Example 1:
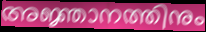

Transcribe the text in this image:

അജ്ഞാനത്തിനും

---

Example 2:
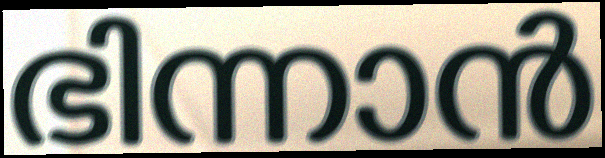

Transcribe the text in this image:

ഭിന്നാൻ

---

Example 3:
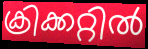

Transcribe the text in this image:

ക്രിക്കറ്റിൽ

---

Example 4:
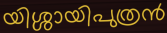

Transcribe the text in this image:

യിശ്ശായിപുത്രൻ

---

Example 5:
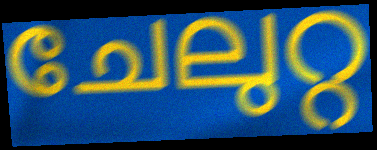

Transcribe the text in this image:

ചേലുറ്റ